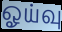
ஓய்வு